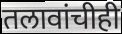
तलावांचीही